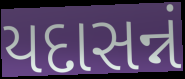
યદાસન્નં